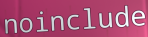
noinclude